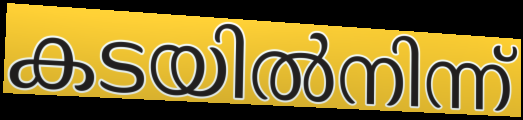
കടയിൽനിന്ന്